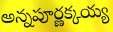
అన్నపూర్ణక్కయ్య